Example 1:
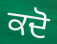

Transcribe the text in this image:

ਕਦੋ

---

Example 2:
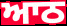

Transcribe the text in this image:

ਆਠ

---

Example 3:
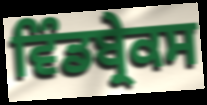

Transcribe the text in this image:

ਵਿੰਡਬ੍ਰੇਕਸ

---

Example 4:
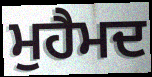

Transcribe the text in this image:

ਮੁਹੈਮਦ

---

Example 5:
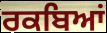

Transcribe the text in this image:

ਰਕਬਿਆਂ